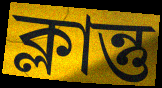
ক্লান্তু